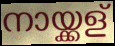
നായ്ക്കള്